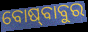
ବୋଷ୍‍ବାବୁର